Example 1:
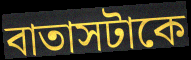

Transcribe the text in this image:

বাতাসটাকে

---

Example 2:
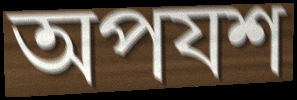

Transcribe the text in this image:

অপযশ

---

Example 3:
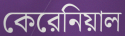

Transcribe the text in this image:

কেরেনিয়াল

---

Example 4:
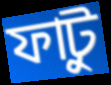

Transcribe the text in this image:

ফাটু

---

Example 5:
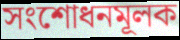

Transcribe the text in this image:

সংশোধনমূলক